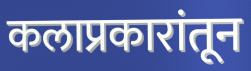
कलाप्रकारांतून